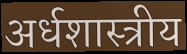
अर्धशास्त्रीय